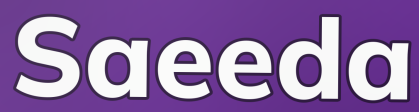
Saeeda